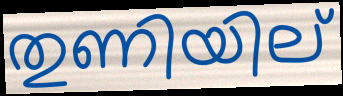
തുണിയില്